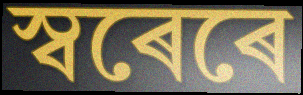
স্বৰেৰে